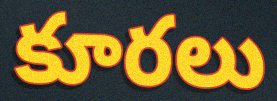
కూరలు